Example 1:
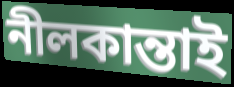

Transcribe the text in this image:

নীলকান্তাই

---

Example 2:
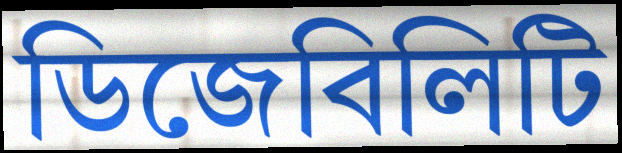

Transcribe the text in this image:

ডিজেবিলিটি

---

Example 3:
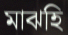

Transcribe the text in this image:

মাঝহি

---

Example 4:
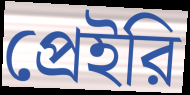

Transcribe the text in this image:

প্রেইরি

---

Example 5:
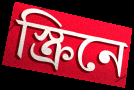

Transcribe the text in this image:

স্ক্রিনে